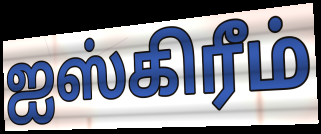
ஐஸ்கிரீம்